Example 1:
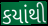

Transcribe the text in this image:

કયાંથી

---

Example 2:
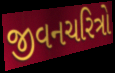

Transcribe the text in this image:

જીવનચરિત્રો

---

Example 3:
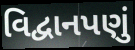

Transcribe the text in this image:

વિદ્વાનપણું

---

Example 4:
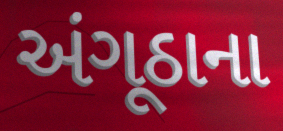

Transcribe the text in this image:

અંગૂઠાના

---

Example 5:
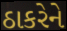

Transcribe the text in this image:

ઠાકરેને